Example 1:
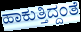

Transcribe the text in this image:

ಹಾಕುತ್ತಿದ್ದಂತೆ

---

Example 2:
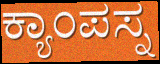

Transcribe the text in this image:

ಕ್ಯಾಂಪಸ್ನ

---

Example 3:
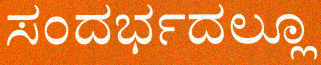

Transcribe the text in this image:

ಸಂದರ್ಭದಲ್ಲೂ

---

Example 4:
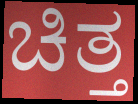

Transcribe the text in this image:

ಚಿತ್ತ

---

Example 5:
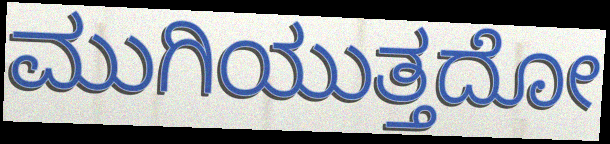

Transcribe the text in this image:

ಮುಗಿಯುತ್ತದೋ